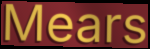
Mears